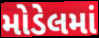
મોડેલમાં